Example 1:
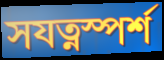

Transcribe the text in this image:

সযত্নস্পর্শ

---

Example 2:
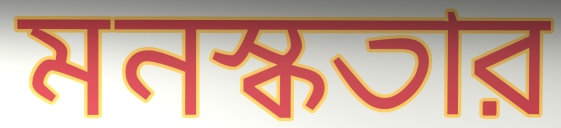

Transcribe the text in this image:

মনস্কতার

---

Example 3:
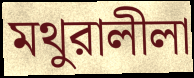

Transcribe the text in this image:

মথুরালীলা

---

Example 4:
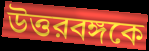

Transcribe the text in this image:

উত্তরবঙ্গকে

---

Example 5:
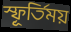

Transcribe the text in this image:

স্ফূর্তিময়